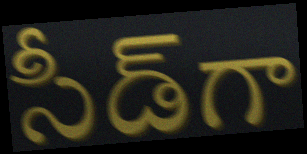
సీడ్‌గా